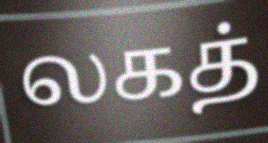
லகத்